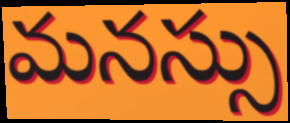
మనస్సు